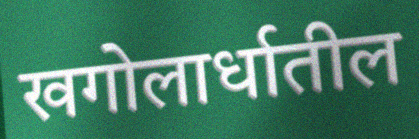
खगोलार्धातील